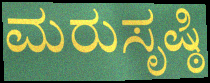
ಮರುಸೃಷ್ಠಿ